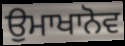
ਉਮਾਖਾਨੋਵ